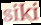
siki